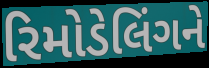
રિમોડેલિંગને